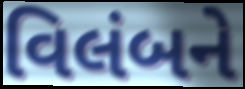
વિલંબને